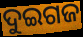
ଦୁଇଗଜ